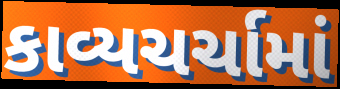
કાવ્યચર્ચામાં